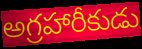
అగ్రహారీకుడు